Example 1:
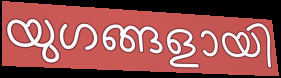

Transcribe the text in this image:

യുഗങ്ങളായി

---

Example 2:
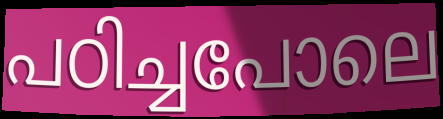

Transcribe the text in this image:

പഠിച്ചപോലെ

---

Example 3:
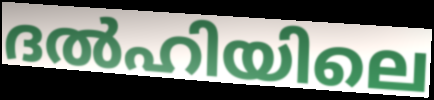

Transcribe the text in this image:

ദൽഹിയിലെ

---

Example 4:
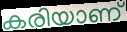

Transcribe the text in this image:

കരിയാണ്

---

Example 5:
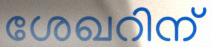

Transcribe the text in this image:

ശേഖറിന്